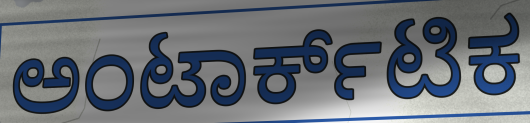
ಅಂಟಾರ್ಕ್‍ಟಿಕ